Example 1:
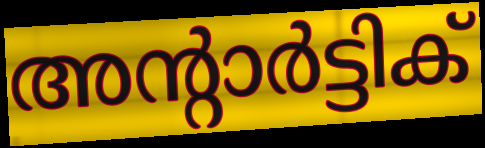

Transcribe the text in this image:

അന്റാർട്ടിക്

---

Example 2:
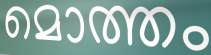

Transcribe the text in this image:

മൊത്തം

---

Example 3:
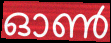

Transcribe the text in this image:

ഓൺ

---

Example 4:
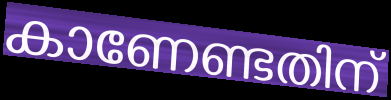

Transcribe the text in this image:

കാണേണ്ടതിന്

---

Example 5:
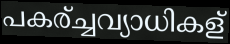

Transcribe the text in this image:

പകര്ച്ചവ്യാധികള്